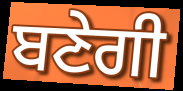
ਬਣੇਗੀ